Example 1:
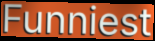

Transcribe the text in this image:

Funniest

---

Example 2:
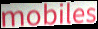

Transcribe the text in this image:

mobiles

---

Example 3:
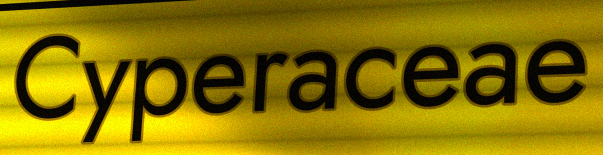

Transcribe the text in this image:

Cyperaceae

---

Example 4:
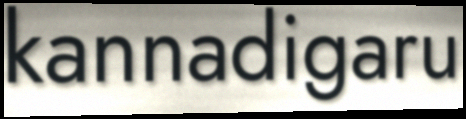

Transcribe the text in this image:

kannadigaru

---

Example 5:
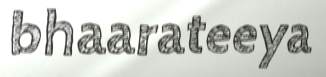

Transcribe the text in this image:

bhaarateeya